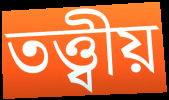
তত্ত্বীয়